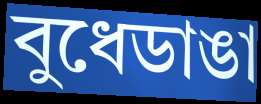
বুধেডাঙা